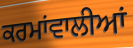
ਕਰਮਾਂਵਾਲੀਆਂ